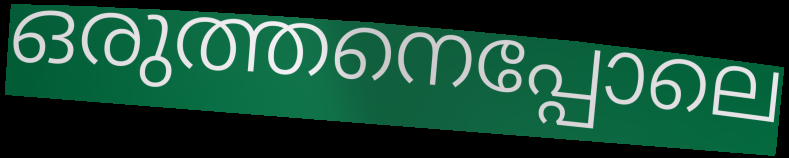
ഒരുത്തനെപ്പോലെ